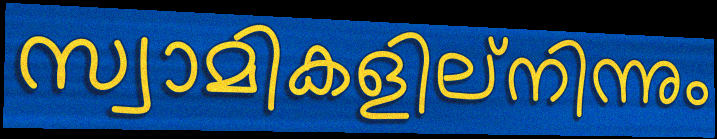
സ്വാമികളില്നിന്നും